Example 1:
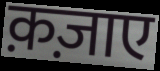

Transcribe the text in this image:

क़ज़ाए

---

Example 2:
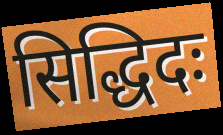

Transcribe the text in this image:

सिद्धिदः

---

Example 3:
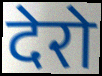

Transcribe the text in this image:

देरो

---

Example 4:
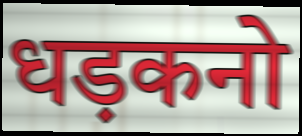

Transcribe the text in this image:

धड़कनो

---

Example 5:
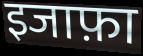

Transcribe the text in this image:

इजाफ़ा